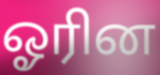
ஓரின